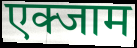
एक्जाम